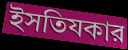
ইসতিযকার